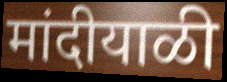
मांदीयाळी